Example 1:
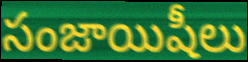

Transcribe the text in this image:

సంజాయిషీలు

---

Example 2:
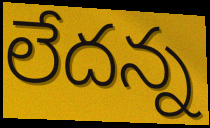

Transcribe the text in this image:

లేదన్న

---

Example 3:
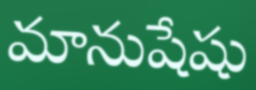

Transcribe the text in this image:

మానుషేషు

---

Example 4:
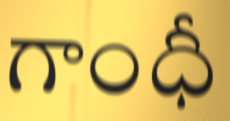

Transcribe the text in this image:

గాంధీ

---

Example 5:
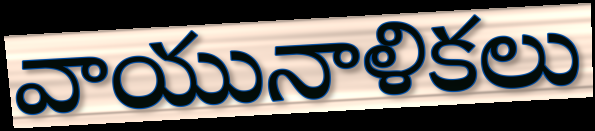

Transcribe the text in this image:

వాయునాళికలు